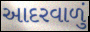
આદરવાળું